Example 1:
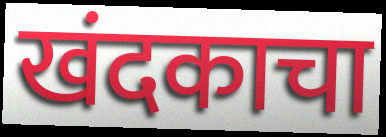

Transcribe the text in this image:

खंदकाचा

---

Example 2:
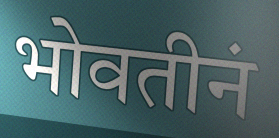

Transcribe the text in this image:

भोवतीनं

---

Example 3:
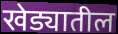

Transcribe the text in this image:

खेड्यातील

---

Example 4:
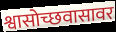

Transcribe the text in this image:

श्वासोच्छवासावर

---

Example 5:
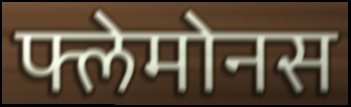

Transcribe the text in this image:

फ्लेमोनस